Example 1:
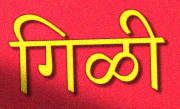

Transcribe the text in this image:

गिळी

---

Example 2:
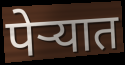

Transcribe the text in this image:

पेऱ्यात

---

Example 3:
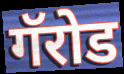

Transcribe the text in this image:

गॅरोड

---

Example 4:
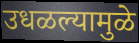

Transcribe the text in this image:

उधळल्यामुळे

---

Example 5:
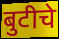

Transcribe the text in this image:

बुटीचे